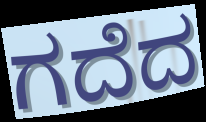
ಗದೆದ